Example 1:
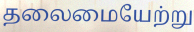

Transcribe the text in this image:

தலைமையேற்று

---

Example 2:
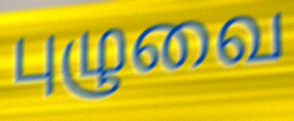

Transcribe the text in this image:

புழுவை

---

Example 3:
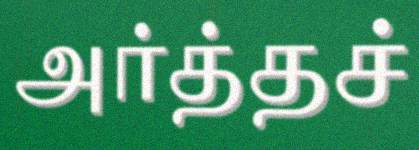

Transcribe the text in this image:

அர்த்தச்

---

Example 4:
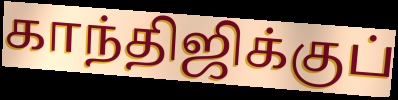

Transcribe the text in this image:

காந்திஜிக்குப்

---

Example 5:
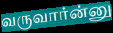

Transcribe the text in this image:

வருவார்ன்னு